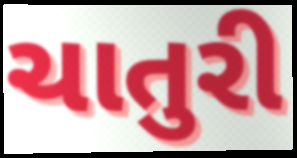
ચાતુરી